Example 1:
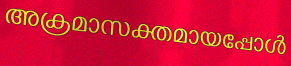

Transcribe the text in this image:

അക്രമാസക്തമായപ്പോൾ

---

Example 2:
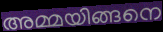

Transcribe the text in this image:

അമ്മയിങ്ങനെ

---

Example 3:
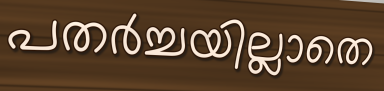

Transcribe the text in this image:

പതർച്ചയില്ലാതെ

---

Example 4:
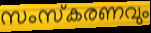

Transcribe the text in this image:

സംസ്കരണവും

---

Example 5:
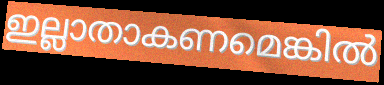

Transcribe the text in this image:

ഇല്ലാതാകണമെങ്കിൽ